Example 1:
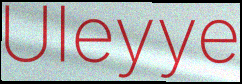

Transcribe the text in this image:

Uleyye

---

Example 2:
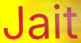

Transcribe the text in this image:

Jait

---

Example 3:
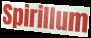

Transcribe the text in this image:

Spirillum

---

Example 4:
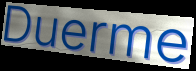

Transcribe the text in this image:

Duerme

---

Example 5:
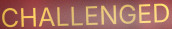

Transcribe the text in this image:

CHALLENGED